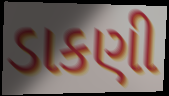
ડાકણી